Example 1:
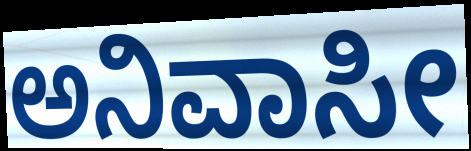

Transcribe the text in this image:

ಅನಿವಾಸೀ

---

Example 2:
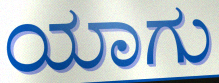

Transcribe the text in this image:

ಯಾಗು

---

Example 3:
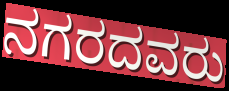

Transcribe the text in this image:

ನಗರದವರು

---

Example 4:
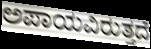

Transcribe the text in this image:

ಅಪಾಯವಿರುತ್ತದೆ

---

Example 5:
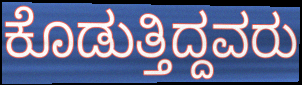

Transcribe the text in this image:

ಕೊಡುತ್ತಿದ್ದವರು